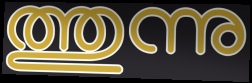
ത്തുന്നു